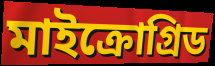
মাইক্রোগ্রিড